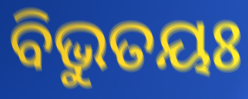
ବିଭୁତୟଃ